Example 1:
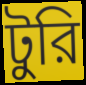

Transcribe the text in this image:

টুরি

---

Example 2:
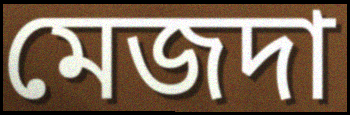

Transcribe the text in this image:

মেজদা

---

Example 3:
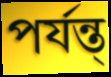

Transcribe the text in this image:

পর্যন্ত্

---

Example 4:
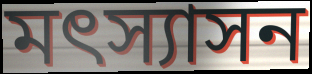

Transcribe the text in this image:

মৎস্যাসন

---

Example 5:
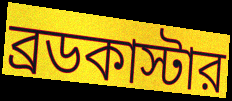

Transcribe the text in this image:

ব্রডকাস্টার